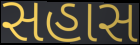
સહાસ